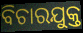
ବିଚାରଯୁକ୍ତ